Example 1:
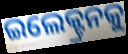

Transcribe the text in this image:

ଇଲେକ୍ଟ୍ରନକୁ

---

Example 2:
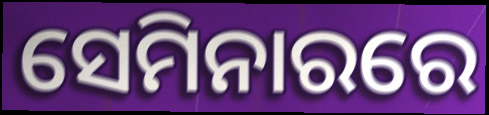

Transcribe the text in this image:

ସେମିନାରରେ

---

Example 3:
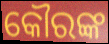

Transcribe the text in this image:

କୌରଙ୍କ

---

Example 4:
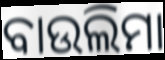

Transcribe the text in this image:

ବାଉଲିମା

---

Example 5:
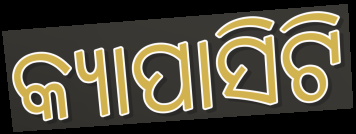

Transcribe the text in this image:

କ୍ୟାପାସିଟି